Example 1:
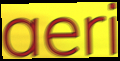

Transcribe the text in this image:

aeri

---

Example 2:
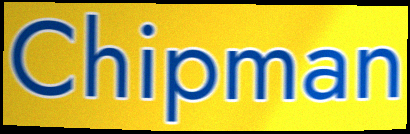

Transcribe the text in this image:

Chipman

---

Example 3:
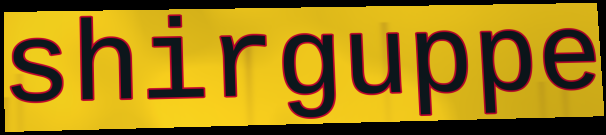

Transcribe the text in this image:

shirguppe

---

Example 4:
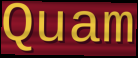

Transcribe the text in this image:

Quam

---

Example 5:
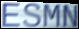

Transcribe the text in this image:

ESMN